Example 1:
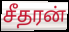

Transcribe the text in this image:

சீதரன்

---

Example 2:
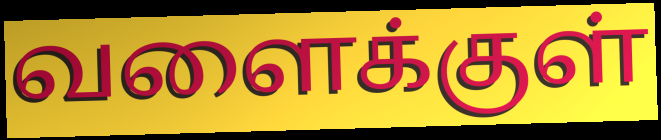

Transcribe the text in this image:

வளைக்குள்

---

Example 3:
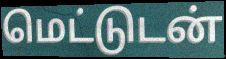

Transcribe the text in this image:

மெட்டுடன்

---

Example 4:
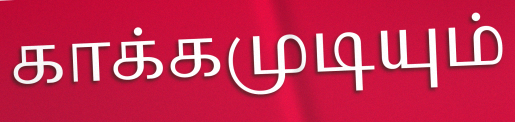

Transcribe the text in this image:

காக்கமுடியும்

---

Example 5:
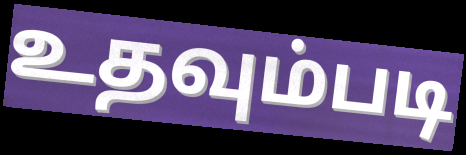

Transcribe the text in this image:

உதவும்படி